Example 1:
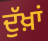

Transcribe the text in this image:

ਦੁੱਖ਼ਾਂ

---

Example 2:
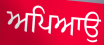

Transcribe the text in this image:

ਅਪਿਆਉ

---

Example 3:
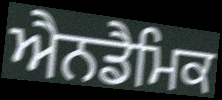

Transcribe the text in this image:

ਐਨਡੈਮਿਕ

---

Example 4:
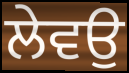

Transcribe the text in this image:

ਲੇਵਉ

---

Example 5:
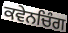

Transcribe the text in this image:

ਕਵੇਨਚਿੰਗ